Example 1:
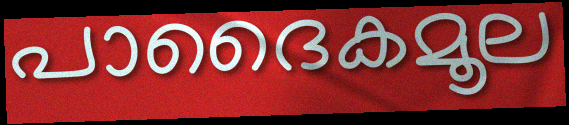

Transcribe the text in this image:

പാദൈകമൂല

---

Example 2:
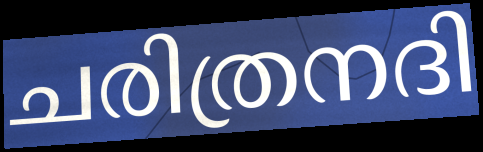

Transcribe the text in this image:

ചരിത്രനദി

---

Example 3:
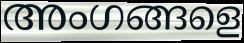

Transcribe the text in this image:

അംഗങ്ങളെ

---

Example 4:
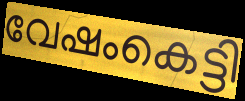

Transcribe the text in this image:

വേഷംകെട്ടി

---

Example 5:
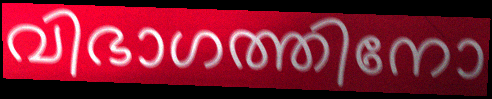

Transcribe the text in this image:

വിഭാഗത്തിനോ